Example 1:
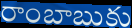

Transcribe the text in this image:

రాంబాబుకు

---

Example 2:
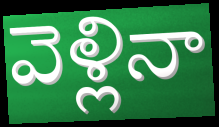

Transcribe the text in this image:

వెళ్లినా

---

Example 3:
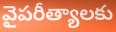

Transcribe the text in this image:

వైపరీత్యాలకు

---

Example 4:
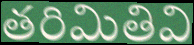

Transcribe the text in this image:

తరిమితివి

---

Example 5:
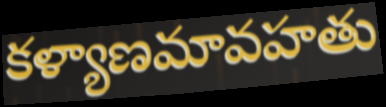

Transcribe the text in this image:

కళ్యాణమావహతు